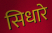
सिधारे